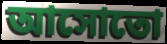
আসোতো